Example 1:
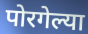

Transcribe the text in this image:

पोरगेल्या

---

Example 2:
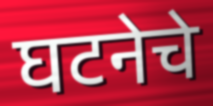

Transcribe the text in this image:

घटनेचे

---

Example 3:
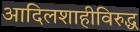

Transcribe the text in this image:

आदिलशाहीविरुद्ध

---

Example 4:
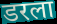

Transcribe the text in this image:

डरला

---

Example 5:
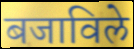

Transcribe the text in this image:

बजाविले